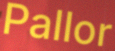
Pallor